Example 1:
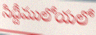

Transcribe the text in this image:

సిద్దీములోయలో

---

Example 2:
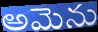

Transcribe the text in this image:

అమెను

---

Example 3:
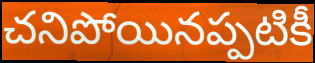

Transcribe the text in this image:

చనిపోయినప్పటికీ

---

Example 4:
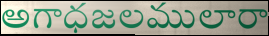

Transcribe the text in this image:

అగాధజలములారా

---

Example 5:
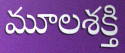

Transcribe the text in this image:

మూలశక్తి